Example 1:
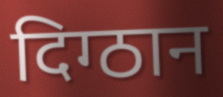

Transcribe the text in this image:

दिग्ठान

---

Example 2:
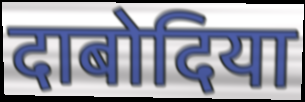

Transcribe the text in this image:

दाबोदिया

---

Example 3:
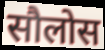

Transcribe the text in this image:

सौलोस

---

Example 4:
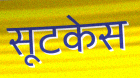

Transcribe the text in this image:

सूटकेस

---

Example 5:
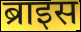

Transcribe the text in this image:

ब्राइस